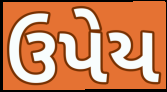
ઉપેય